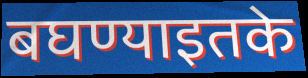
बघण्याइतके